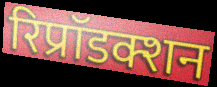
रिप्रॉडक्शन